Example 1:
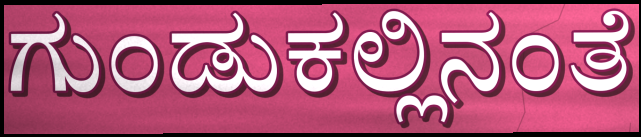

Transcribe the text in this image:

ಗುಂಡುಕಲ್ಲಿನಂತೆ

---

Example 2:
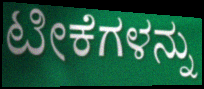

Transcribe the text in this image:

ಟೀಕೆಗಳನ್ನು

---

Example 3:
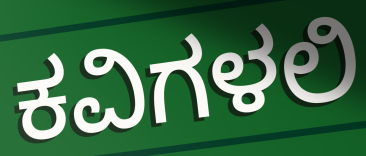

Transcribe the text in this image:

ಕವಿಗಳಲಿ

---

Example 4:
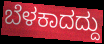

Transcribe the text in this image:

ಬೆಳಕಾದದ್ದು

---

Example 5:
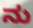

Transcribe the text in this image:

ನು